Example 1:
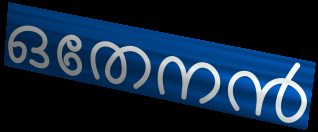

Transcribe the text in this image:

ഒതേനൻ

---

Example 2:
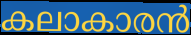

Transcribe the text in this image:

കലാകാരൻ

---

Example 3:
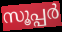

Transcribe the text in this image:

സൂപ്പർ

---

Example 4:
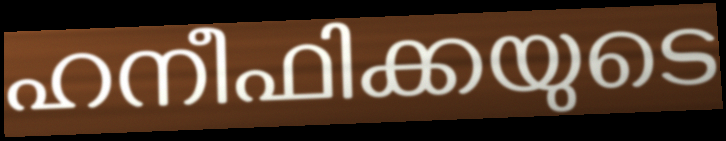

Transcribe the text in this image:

ഹനീഫിക്കയുടെ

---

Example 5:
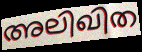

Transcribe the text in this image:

അലിഖിത